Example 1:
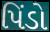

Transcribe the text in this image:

પિંડો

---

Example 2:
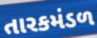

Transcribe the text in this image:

તારકમંડળ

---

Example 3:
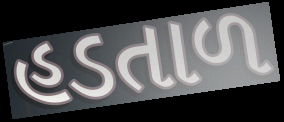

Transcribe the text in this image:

હડતાળ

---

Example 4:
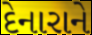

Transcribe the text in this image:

દેનારાને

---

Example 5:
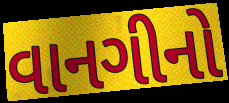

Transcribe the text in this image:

વાનગીનો